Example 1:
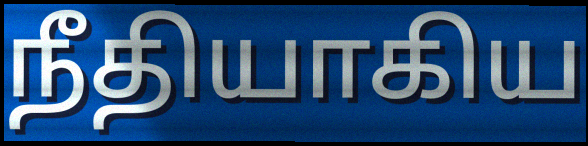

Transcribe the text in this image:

நீதியாகிய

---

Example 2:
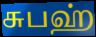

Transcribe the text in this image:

சுபஹ்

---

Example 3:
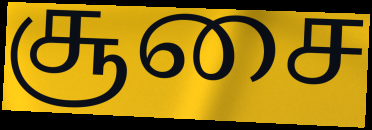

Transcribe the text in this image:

சூசை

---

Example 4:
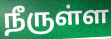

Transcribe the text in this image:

நீருள்ள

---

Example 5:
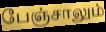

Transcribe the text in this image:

பேஞ்சாலும்